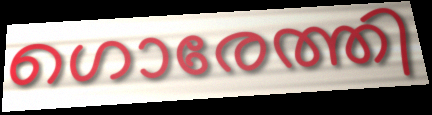
ഗൊരേത്തി